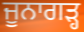
ਜੂਨਾਗੜ੍ਹ